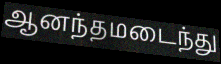
ஆனந்தமடைந்து